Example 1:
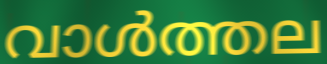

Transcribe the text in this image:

വാൾത്തല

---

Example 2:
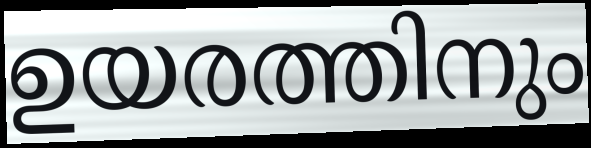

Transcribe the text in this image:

ഉയരത്തിനും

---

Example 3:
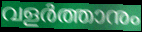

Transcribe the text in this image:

വളർത്താനും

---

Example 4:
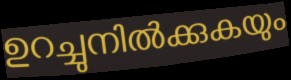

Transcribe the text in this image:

ഉറച്ചുനിൽക്കുകയും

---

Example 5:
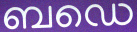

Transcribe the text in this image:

ബഡെ